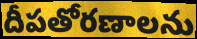
దీపతోరణాలను